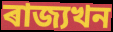
ৰাজ্যখন